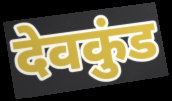
देवकुंड